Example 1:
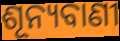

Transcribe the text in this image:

ଶୂନ୍ୟବାଣୀ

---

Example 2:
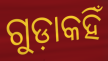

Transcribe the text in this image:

ଗୁଡ଼ାକହିଁ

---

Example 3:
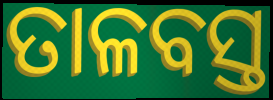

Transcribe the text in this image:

ତାଳବସ୍ତ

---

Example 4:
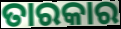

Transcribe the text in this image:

ତାରକାର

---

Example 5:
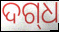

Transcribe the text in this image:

ଦଗ୍‌ଧ